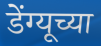
डेंग्यूच्या